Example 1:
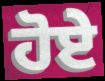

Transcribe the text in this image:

ਹੋਏੇ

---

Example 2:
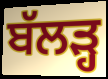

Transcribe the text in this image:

ਬੱਲੜ੍ਹ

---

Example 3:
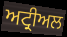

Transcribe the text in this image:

ਅਟ੍ਰੀਅਲ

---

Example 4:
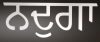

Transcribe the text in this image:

ਨਦੁਗਾ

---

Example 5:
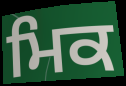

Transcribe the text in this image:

ਮਿਕ